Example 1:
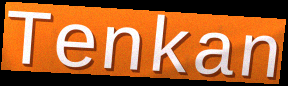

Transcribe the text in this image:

Tenkan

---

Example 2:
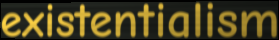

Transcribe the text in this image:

existentialism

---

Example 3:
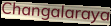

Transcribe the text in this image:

Changalaraya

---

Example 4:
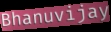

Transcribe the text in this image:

Bhanuvijay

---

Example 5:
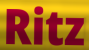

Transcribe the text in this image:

Ritz